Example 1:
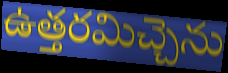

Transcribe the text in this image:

ఉత్తరమిచ్చెను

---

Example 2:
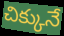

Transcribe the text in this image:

చిక్కునే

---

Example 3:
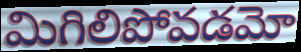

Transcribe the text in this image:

మిగిలిపోవడమో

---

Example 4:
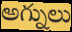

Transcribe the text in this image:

అగ్నులు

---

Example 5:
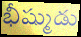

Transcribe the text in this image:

భీష్ముడు